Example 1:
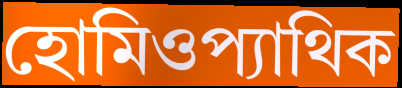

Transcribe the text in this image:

হোমিওপ্যাথিক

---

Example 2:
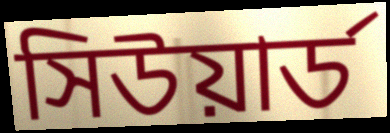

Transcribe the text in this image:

সিউয়ার্ড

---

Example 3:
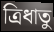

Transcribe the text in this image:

ত্রিধাতু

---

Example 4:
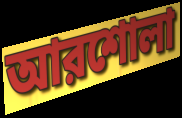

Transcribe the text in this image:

আরশোলা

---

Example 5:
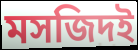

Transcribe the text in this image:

মসজিদই